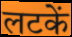
लटकें